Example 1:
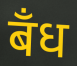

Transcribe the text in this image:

बँध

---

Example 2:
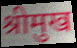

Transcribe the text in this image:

श्रीमुख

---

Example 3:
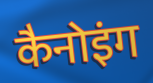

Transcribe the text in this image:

कैनोइंग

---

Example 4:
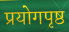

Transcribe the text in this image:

प्रयोगपृष्ठ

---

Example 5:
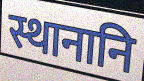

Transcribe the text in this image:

स्थानानि